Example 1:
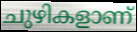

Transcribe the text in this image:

ചുഴികളാണ്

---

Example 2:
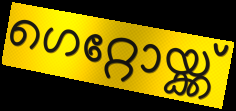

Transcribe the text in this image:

ഗെറ്റോയ്ക്ക്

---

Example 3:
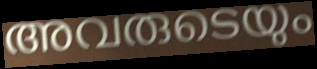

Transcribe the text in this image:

അവരുടെയും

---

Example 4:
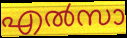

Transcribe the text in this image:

എൽസാ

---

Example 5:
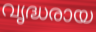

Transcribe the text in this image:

വൃദ്ധരായ